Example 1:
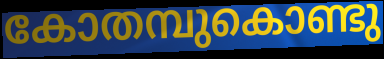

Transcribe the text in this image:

കോതമ്പുകൊണ്ടു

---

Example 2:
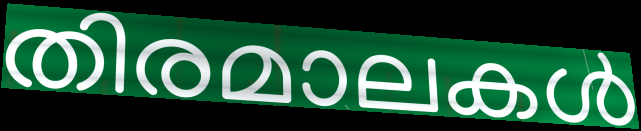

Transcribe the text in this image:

തിരമാലകൾ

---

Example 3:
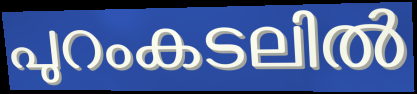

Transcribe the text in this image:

പുറംകടലിൽ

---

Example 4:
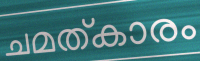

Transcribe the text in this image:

ചമത്കാരം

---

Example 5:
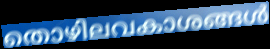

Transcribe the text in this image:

തൊഴിലവകാശങ്ങൾ